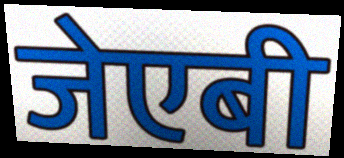
जेएबी